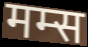
मम्स